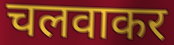
चलवाकर